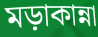
মড়াকান্না